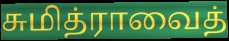
சுமித்ராவைத்